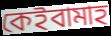
কেইবামাহ